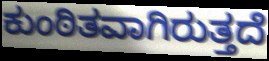
ಕುಂಠಿತವಾಗಿರುತ್ತದೆ